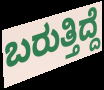
ಬರುತ್ತಿದ್ದೆ